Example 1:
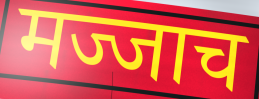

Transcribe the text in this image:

मज्जाच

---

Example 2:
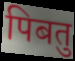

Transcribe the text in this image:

पिबतु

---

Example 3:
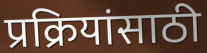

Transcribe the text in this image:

प्रक्रियांसाठी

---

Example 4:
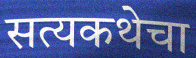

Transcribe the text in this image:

सत्यकथेचा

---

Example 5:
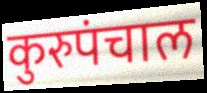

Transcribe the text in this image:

कुरुपंचाल